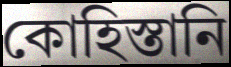
কোহিস্তানি